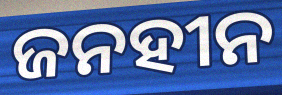
ଜନହୀନ